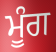
ਮੂੰਗ